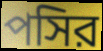
পসির